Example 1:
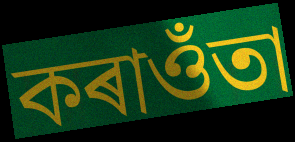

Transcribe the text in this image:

কৰাওঁতা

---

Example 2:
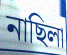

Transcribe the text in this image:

নাছিলা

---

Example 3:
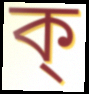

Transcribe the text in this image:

ক্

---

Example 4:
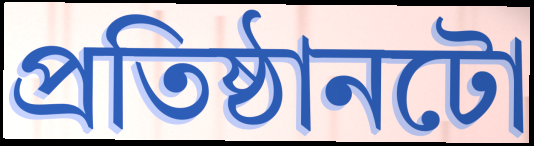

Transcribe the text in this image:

প্ৰতিষ্ঠানটো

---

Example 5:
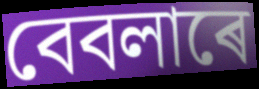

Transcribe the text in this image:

বেবলাৰে